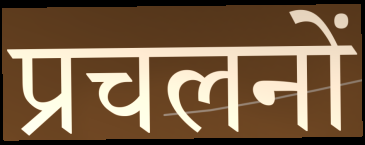
प्रचलनों